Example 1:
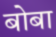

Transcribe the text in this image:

बोबा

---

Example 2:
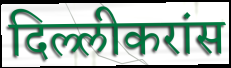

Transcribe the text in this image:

दिल्लीकरांस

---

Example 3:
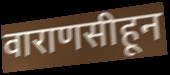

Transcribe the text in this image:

वाराणसीहून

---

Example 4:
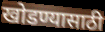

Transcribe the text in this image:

खोडण्यासाठी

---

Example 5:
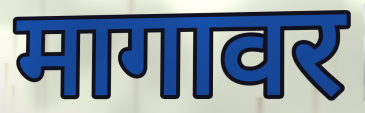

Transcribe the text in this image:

मागावर